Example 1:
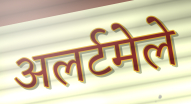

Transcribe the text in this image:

अलर्टमेले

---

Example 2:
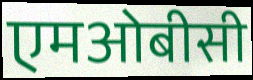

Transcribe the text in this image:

एमओबीसी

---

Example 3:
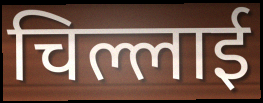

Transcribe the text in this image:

चिल्लाई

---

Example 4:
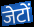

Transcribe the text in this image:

जेटों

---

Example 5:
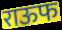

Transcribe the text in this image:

राऊफ